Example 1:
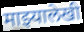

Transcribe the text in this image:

माझ्यालेखी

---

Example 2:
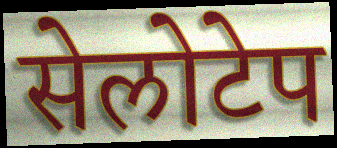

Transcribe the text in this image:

सेलोटेप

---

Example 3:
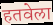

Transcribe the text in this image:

हतवेला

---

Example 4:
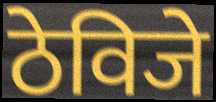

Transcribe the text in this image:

ठेविजे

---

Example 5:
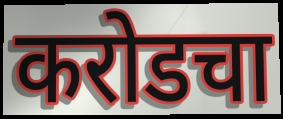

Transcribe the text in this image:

करोडचा